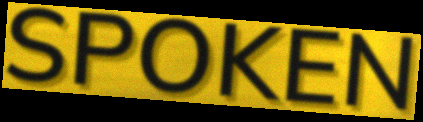
SPOKEN